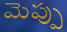
మెప్పు